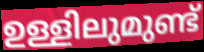
ഉള്ളിലുമുണ്ട്